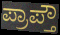
ಪ್ರಾಪ್ತೌ